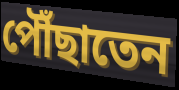
পৌঁছাতেন